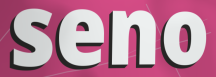
seno